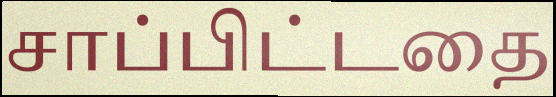
சாப்பிட்டதை